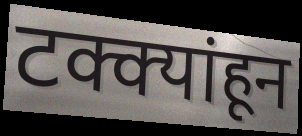
टक्क्यांहून